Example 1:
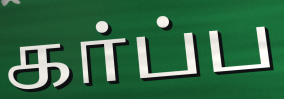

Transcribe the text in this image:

கர்ப்ப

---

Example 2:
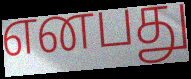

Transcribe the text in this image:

எனபது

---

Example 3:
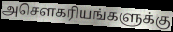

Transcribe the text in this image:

அசௌகரியங்களுக்கு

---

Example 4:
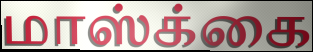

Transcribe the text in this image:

மாஸ்க்கை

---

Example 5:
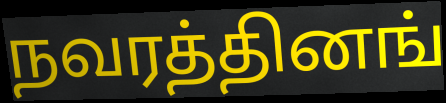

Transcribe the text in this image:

நவரத்தினங்